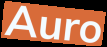
Auro